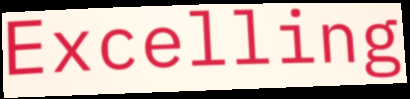
Excelling